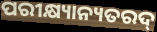
ପରୀକ୍ଷ୍ୟାନ୍ୟତରଦ୍